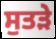
ਸੁਤੜੇ